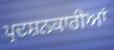
ਪ੍ਰਦਸ਼ਨਕਾਰੀਆਂ